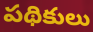
పథికులు